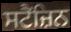
ਸਟੈਂਜ਼ਿਨ